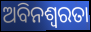
ଅବିନଶ୍ୱରତା